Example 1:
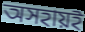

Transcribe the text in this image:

অসহায়ই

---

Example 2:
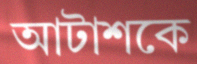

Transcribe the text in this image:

আটাশকে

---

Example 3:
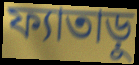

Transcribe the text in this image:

ফ্যাতাড়ু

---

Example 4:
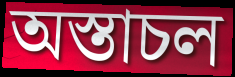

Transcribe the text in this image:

অস্তাচল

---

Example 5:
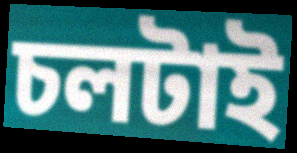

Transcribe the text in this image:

চলটাই